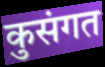
कुसंगत